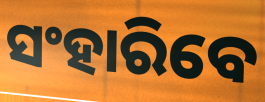
ସଂହାରିବେ